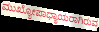
ಮುಖ್ಯೋಪಾಧ್ಯಾಯರಾಗಿರುವ